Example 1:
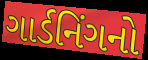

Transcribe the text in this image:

ગાર્ડનિંગનો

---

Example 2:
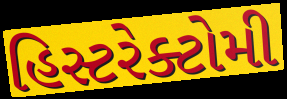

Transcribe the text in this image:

હિસ્ટરેક્ટોમી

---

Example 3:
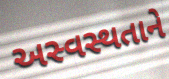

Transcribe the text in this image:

અસ્વસ્થતાને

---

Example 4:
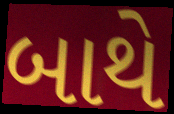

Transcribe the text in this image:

બાથે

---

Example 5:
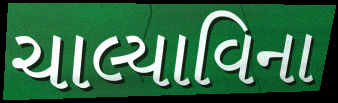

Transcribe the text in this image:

ચાલ્યાવિના